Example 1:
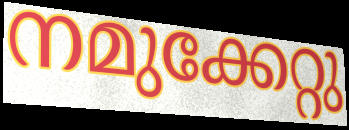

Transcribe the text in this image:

നമുക്കേറ്റു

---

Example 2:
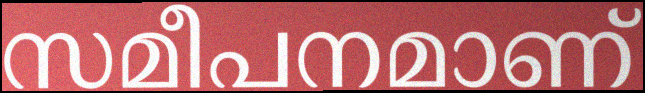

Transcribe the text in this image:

സമീപനമാണ്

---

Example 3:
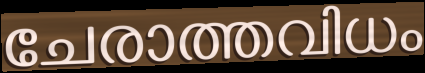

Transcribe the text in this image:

ചേരാത്തവിധം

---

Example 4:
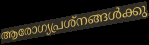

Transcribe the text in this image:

ആരോഗ്യപ്രശ്നങ്ങൾക്കു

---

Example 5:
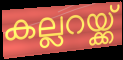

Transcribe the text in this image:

കല്ലറയ്ക്ക്